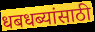
धबधब्यांसाठी